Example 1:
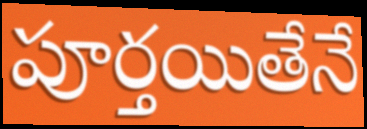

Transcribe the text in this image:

పూర్తయితేనే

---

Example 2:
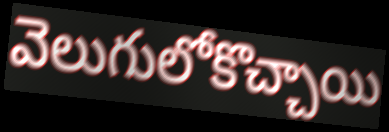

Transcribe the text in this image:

వెలుగులోకొచ్చాయి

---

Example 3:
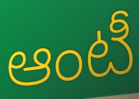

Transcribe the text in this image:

ఆంటీ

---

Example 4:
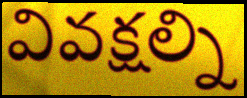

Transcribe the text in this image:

వివక్షల్ని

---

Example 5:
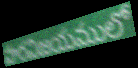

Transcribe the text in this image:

హరవిజయములో